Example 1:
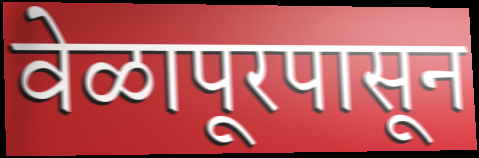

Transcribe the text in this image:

वेळापूरपासून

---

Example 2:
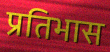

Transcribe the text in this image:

प्रतिभास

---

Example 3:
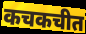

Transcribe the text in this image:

कचकचीत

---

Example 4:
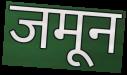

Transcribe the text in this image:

जमून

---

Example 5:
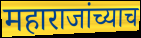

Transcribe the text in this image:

महाराजांच्याच